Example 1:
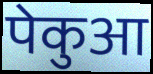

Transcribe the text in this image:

पेकुआ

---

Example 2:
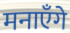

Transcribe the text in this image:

मनाएँगे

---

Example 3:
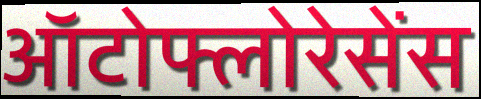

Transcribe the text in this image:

ऑटोफ्लोरेसेंस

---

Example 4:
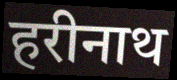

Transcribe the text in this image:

हरीनाथ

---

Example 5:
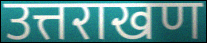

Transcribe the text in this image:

उत्तराखण